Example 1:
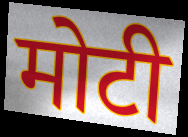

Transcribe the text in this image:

मोटी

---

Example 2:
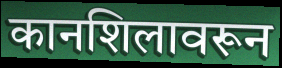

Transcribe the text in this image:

कानशिलावरून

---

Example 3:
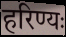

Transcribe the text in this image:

हरिण्यः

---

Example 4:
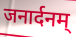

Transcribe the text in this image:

जनार्दनम्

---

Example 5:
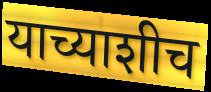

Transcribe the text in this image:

याच्याशीच